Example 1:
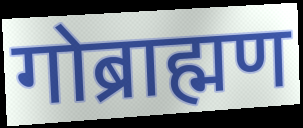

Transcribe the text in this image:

गोब्राह्मण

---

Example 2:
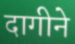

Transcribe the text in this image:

दागीने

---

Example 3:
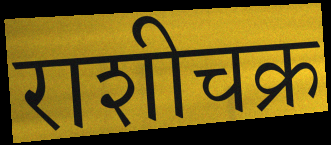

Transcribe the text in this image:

राशीचक्र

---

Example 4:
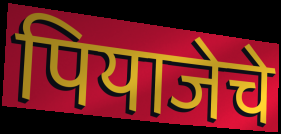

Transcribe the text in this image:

पियाजेचे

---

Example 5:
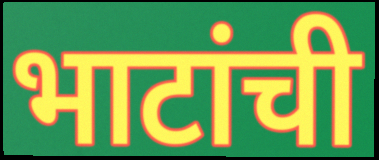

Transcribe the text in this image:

भाटांची